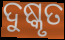
ଦୁଷ୍କୃତ